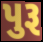
પુરૂ